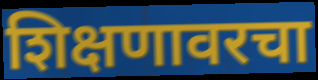
शिक्षणावरचा